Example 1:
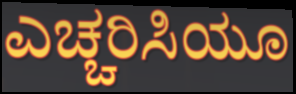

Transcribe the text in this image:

ಎಚ್ಚರಿಸಿಯೂ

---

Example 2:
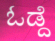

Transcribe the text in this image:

ಓಡ್ದೆ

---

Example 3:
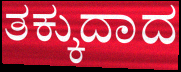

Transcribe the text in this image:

ತಕ್ಕುದಾದ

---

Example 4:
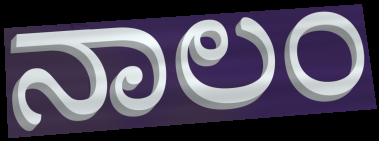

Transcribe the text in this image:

ನಾಲಂ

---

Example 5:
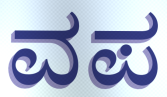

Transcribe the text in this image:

ವಪ